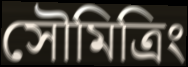
সৌমিত্রিং